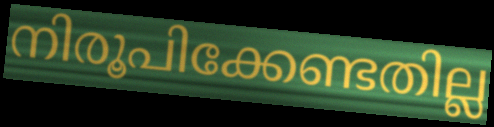
നിരൂപിക്കേണ്ടതില്ല